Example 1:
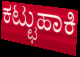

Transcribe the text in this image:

ಕಟ್ಟುಹಾಕಿ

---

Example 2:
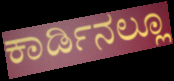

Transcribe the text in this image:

ಕಾರ್ಡಿನಲ್ಲೂ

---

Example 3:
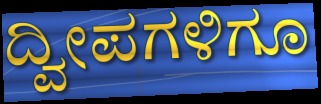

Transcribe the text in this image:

ದ್ವೀಪಗಳಿಗೂ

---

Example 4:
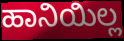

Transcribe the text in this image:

ಹಾನಿಯಿಲ್ಲ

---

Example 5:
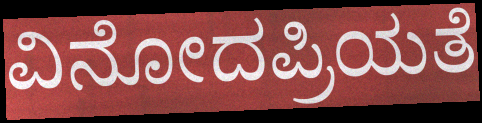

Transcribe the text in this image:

ವಿನೋದಪ್ರಿಯತೆ